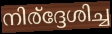
നിര്ദ്ദേശിച്ച